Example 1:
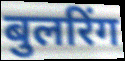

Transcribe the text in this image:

बुलरिंग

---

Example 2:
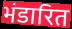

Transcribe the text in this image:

भंडारित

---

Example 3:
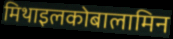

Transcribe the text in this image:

मिथाइलकोबालामिन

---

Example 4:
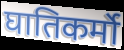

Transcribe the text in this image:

घातिकर्मो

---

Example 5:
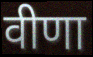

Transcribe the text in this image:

वीणा